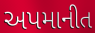
અપમાનીત